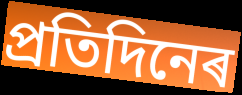
প্ৰতিদিনেৰ